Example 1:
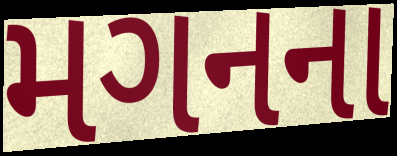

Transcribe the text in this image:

મગનના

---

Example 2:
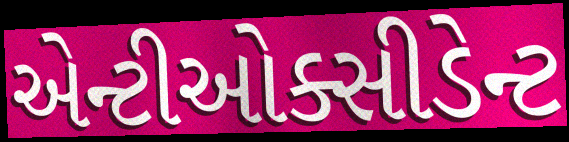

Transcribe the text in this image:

એન્ટીઓક્સીડેન્ટ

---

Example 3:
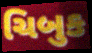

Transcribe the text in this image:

ચિબુક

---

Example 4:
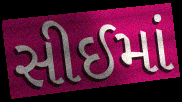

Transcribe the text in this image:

સીઈમાં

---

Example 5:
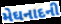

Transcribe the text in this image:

મેઘનાદની